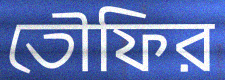
তৌফির